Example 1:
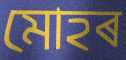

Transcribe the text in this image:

মোহৰ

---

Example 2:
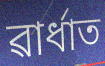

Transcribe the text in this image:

ৱাৰ্ধাত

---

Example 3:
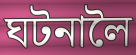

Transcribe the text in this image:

ঘটনালৈ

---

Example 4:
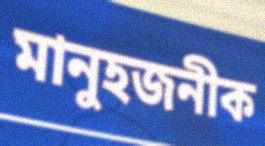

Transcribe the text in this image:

মানুহজনীক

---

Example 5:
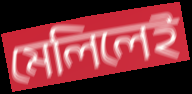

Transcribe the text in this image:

মেলিলেই